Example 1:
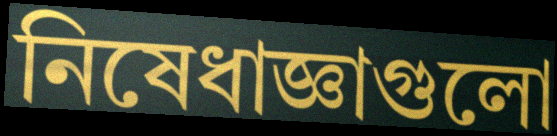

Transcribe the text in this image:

নিষেধাজ্ঞাগুলো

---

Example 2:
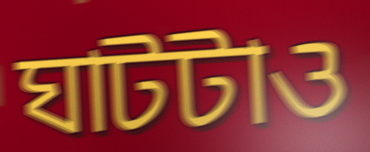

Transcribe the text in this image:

ঘাটটাও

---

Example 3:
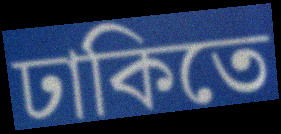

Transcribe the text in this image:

ঢাকিতে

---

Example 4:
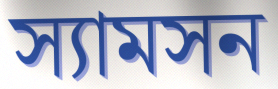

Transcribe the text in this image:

স্যামসন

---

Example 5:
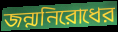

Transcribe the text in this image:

জন্মনিরোধের